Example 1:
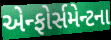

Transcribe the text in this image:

એન્ફોર્સમેન્ટના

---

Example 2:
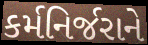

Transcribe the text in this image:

કર્મનિર્જરાને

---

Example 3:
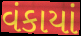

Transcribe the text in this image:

વંકાયાં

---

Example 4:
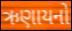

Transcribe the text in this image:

ઋણાયનો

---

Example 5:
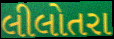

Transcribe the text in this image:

લીલોતરા